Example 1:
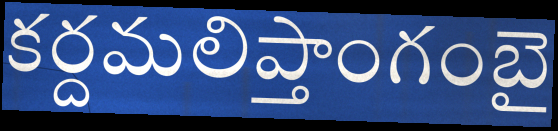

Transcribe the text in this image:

కర్దమలిప్తాంగంబై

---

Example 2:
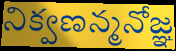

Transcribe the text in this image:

నిక్వణన్మనోజ్ఞ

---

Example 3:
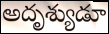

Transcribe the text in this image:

అదృశ్యుడూ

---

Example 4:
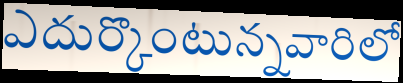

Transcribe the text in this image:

ఎదుర్కొంటున్నవారిలో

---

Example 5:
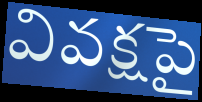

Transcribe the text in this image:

వివక్షపై